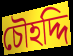
চৌহদ্দি